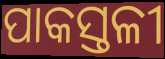
ପାକସ୍ତଳୀ